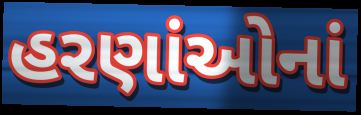
હરણાંઓનાં